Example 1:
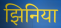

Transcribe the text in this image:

झिनिया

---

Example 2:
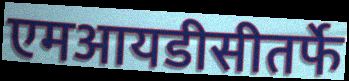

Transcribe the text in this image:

एमआयडीसीतर्फे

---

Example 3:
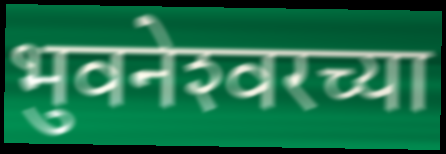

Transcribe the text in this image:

भुवनेश्वरच्या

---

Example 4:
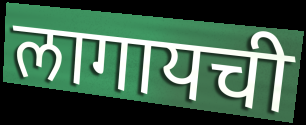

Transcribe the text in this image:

लागायची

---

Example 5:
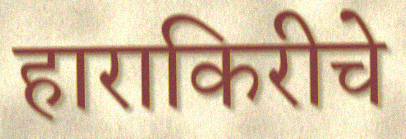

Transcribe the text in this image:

हाराकिरीचे